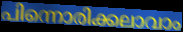
പിന്നൊരിക്കലാവാം